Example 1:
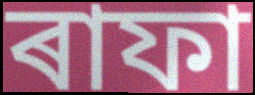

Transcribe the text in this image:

ৰাফা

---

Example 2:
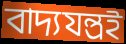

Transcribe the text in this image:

বাদ্যযন্ত্ৰই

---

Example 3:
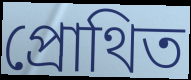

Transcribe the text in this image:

প্ৰোথিত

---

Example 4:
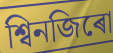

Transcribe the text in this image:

শ্বিনজিৰো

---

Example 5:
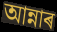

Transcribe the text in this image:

আন্নাৰ